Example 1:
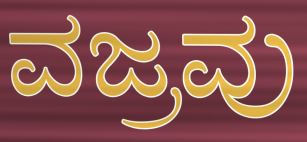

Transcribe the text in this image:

ವಜ್ರವು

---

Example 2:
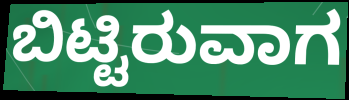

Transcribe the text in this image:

ಬಿಟ್ಟಿರುವಾಗ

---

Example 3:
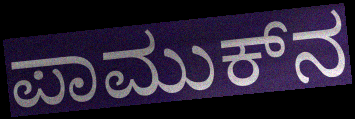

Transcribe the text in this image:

ಪಾಮುಕ್‍ನ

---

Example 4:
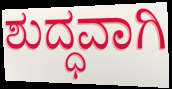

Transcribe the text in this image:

ಶುದ್ಧವಾಗಿ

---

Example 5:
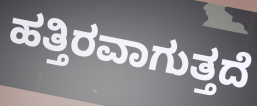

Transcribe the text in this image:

ಹತ್ತಿರವಾಗುತ್ತದೆ